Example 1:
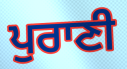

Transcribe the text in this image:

ਪੁਰਾਣੀ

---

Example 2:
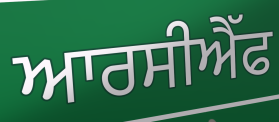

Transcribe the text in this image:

ਆਰਸੀਐੱਫ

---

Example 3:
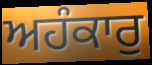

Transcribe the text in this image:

ਅਹੰਕਾਰੁ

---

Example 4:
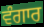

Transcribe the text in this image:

ਵੰਗਾਰ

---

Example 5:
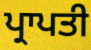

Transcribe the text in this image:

ਪ੍ਰਾਪਤੀ